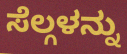
ಸೆಲ್ಗಳನ್ನು